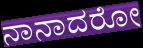
ನಾನಾದರೋ